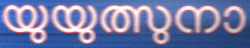
യുയുത്സുനാ